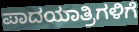
ಪಾದಯಾತ್ರಿಗಳಿಗೆ